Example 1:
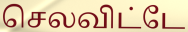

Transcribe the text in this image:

செலவிட்டே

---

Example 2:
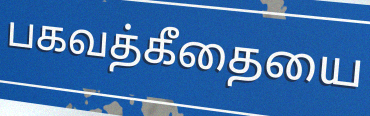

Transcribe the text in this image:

பகவத்கீதையை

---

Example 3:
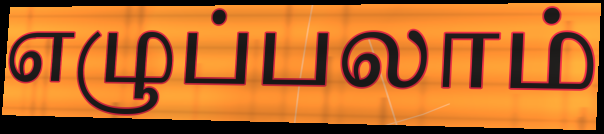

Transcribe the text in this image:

எழுப்பலாம்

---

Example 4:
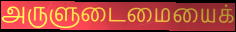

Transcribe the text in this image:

அருளுடைமையைக்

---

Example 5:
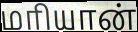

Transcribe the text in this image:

மரியான்